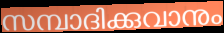
സമ്പാദിക്കുവാനും